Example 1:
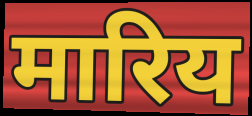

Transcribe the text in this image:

मारिय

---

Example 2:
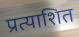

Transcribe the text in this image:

प्रत्याशित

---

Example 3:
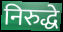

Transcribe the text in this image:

निरुद्धे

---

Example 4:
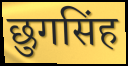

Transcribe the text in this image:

छुगसिंह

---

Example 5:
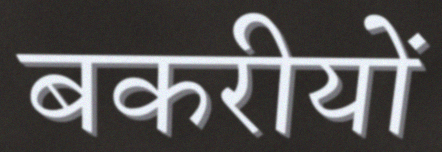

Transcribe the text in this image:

बकरीयों